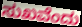
ಸುಖವೆಂದು